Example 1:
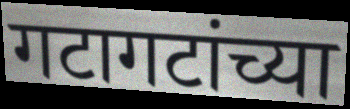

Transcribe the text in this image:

गटागटांच्या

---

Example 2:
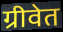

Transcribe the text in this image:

ग्रीवेत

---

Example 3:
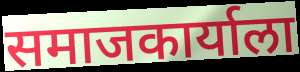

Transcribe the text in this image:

समाजकार्याला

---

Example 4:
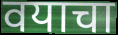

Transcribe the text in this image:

वयाचा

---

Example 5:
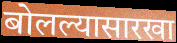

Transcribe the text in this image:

बोलल्यासारखा